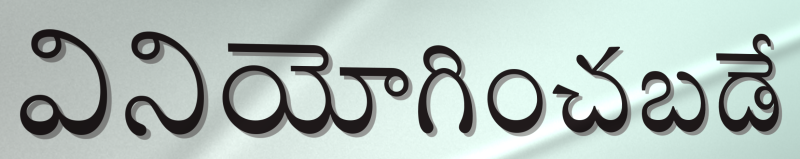
వినియోగించబడే